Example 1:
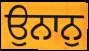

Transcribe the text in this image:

ਉਨਾਨੁ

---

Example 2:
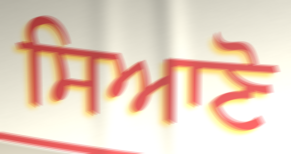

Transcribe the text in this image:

ਸਿਆਣੋ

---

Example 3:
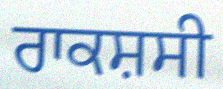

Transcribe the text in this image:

ਰਾਕਸ਼ਸੀ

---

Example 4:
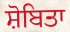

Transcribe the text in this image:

ਸ਼ੋਬਿਤਾ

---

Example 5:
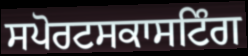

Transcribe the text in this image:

ਸਪੋਰਟਸਕਾਸਟਿੰਗ